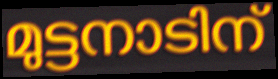
മുട്ടനാടിന്